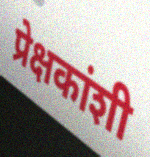
प्रेक्षकांशी